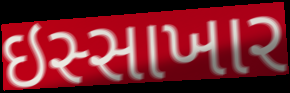
ઇસ્સાખાર